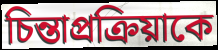
চিন্তাপ্রক্রিয়াকে